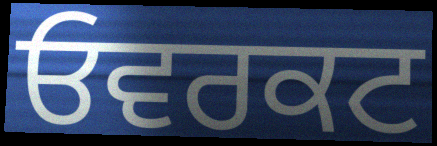
ਓਵਰਕਟ